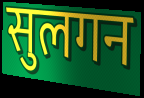
सुलगन